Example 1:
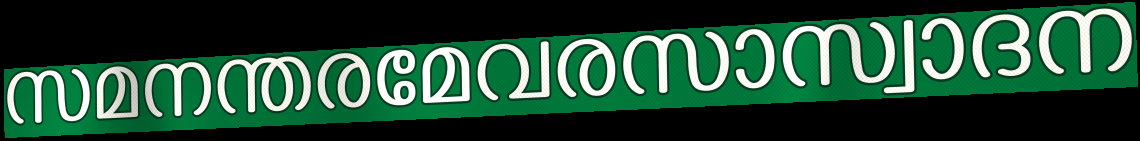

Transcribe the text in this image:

സമനന്തരമേവരസാസ്വാദന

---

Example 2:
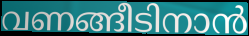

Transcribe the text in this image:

വണങ്ങീടിനാൻ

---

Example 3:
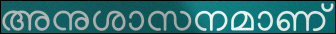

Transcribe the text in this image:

അനുശാസനമാണ്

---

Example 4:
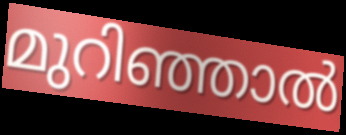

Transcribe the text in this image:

മുറിഞ്ഞാൽ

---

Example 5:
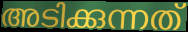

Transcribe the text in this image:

അടിക്കുന്നത്